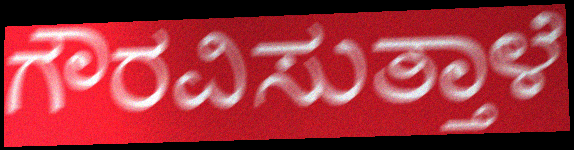
ಗೌರವಿಸುತ್ತಾಳೆ